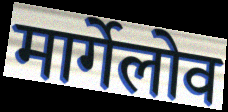
मार्गेलोव